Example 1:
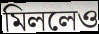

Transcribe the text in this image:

মিললেও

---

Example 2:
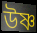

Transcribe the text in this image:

উষ্ণ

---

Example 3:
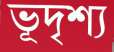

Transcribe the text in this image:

ভূদৃশ্য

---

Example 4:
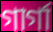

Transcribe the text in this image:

গার্গা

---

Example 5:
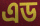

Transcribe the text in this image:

এড